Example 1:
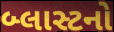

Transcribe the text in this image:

બ્લાસ્ટનો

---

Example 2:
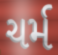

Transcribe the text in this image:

ચર્મ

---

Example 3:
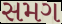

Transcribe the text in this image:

સમગ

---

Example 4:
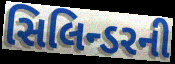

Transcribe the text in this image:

સિલિન્ડરની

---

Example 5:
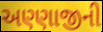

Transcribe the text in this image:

અણ્ણાજીની